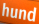
hund